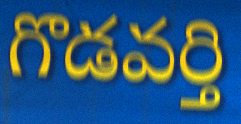
గొడవర్తి